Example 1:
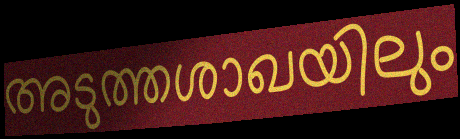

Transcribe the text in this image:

അടുത്തശാഖയിലും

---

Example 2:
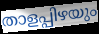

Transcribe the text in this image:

താളപ്പിഴയും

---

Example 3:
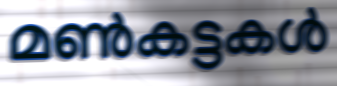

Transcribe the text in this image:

മൺകട്ടകൾ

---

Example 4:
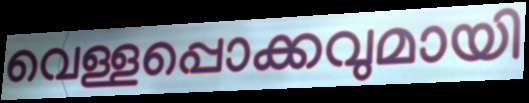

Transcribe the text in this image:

വെള്ളപ്പൊക്കവുമായി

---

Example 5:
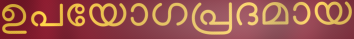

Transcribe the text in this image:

ഉപയോഗപ്രദമായ